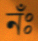
নঁঃ